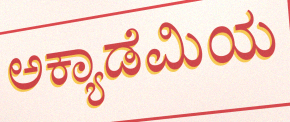
ಅಕ್ಯಾಡೆಮಿಯ